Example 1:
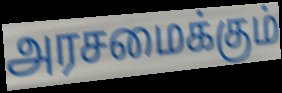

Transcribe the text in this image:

அரசமைக்கும்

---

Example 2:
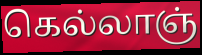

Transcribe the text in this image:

கெல்லாஞ்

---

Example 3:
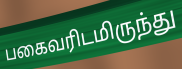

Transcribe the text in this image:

பகைவரிடமிருந்து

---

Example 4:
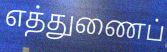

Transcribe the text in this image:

எத்துணைப்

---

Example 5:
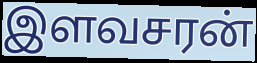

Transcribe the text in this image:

இளவசரன்